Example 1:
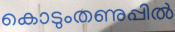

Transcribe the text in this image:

കൊടുംതണുപ്പിൽ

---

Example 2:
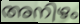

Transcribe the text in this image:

അനിഴം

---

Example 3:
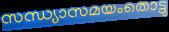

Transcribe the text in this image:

സന്ധ്യാസമയംതൊട്ടു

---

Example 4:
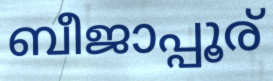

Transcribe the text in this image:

ബീജാപ്പൂര്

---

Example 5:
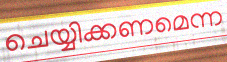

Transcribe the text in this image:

ചെയ്യിക്കണമെന്ന